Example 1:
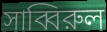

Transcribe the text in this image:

সাব্বিরুল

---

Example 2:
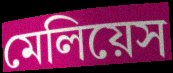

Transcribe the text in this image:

মেলিয়েস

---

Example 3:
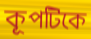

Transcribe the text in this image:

কূপটিকে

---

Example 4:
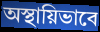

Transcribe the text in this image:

অস্থায়িভাবে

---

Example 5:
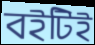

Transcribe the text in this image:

বইটিই